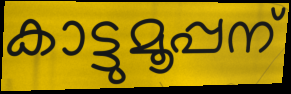
കാട്ടുമൂപ്പന്